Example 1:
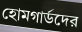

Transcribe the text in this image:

হোমগার্ডদের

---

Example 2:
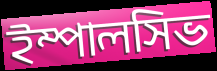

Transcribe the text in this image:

ইম্পালসিভ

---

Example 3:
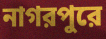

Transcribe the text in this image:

নাগরপুরে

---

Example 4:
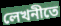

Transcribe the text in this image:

লেখনীতে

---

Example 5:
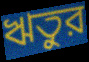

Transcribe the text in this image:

ঋতুর